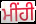
ਮੀਂਹੀ